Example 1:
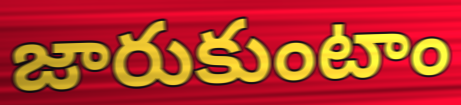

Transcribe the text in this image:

జారుకుంటాం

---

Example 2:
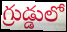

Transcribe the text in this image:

గ్రుడ్డులో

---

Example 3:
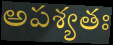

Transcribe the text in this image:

అపశ్యతః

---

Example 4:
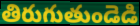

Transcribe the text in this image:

తిరుగుతుండెడి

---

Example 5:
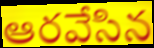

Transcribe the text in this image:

ఆరవేసిన